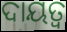
ଦାୟତ୍ବ